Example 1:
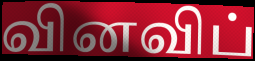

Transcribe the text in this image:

வினவிப்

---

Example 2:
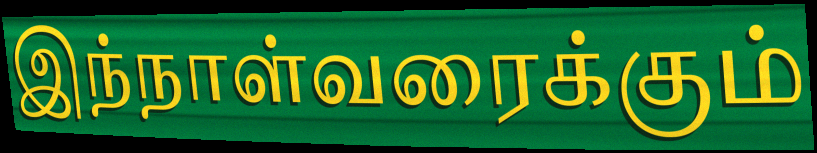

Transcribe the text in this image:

இந்நாள்வரைக்கும்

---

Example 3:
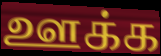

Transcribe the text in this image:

ஊக்க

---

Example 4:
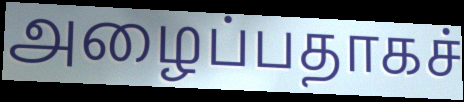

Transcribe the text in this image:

அழைப்பதாகச்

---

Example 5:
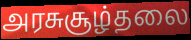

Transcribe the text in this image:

அரசுசூழ்தலை